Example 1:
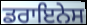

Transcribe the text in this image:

ਡਰਾਇਨੇਸ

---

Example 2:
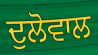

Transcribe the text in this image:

ਦੁਲੋਵਾਲ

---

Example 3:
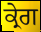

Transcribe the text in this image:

ਕ੍ਰੇਗ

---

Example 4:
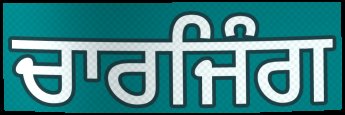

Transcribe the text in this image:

ਚਾਰਜਿੰਗ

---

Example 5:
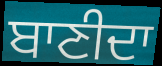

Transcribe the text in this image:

ਬਾਣੀਦਾ